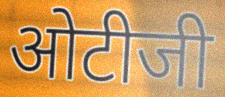
ओटीजी